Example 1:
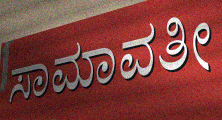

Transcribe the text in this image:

ಸಾಮಾವತೀ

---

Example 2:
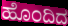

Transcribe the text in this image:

ಹೊಂದಿದ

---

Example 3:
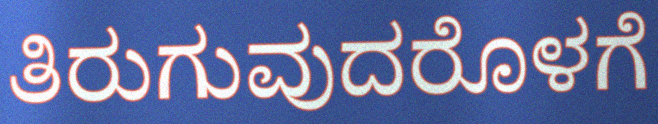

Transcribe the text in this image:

ತಿರುಗುವುದರೊಳಗೆ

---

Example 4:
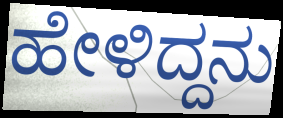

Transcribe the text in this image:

ಹೇಳಿದ್ದನು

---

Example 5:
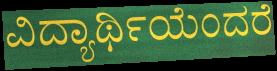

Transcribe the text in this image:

ವಿದ್ಯಾರ್ಥಿಯೆಂದರೆ